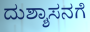
ದುಶ್ಶಾಸನಗೆ